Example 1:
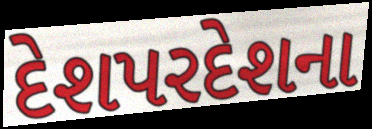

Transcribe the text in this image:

દેશપરદેશના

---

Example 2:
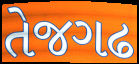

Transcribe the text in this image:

તેજગઢ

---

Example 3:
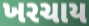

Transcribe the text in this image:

ખરચાય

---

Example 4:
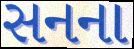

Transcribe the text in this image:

સનના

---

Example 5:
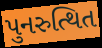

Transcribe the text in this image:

પુનરુત્થિત